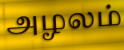
அழலம்